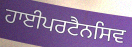
ਹਾਈਪਰਟੈਨਸਿਵ